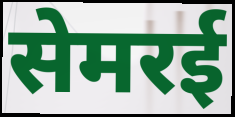
सेमरई